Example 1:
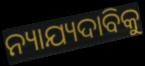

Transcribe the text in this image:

ନ୍ୟାଯ୍ୟଦାବିକୁ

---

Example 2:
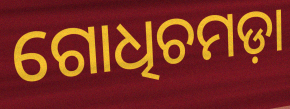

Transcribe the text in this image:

ଗୋଧିଚମଡ଼ା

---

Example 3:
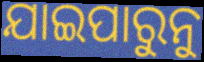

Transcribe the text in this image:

ଯାଇପାରୁନୁ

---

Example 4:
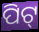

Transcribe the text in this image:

ପିଟ୍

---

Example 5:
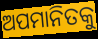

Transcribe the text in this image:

ଅପମାନିତକୁ